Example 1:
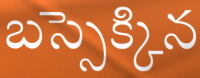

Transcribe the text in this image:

బస్సెక్కిన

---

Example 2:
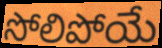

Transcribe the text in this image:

సోలిపోయే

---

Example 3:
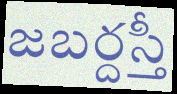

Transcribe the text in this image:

జబర్దస్తీ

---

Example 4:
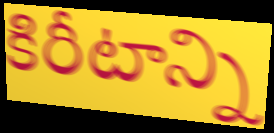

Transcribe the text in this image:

కిరీటాన్ని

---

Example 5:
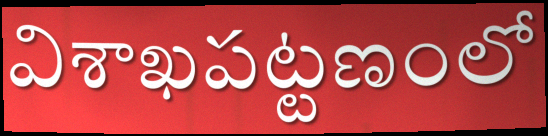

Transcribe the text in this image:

విశాఖపట్టణంలో